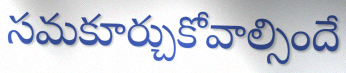
సమకూర్చుకోవాల్సిందే